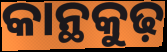
କାନ୍ଥକୁଢ଼